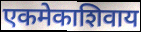
एकमेकाशिवाय